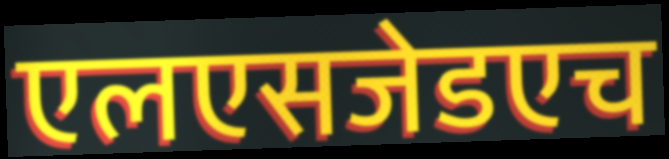
एलएसजेडएच